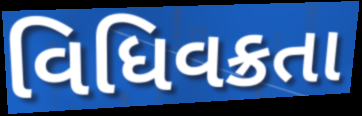
વિધિવક્રતા